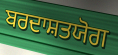
ਬਰਦਾਸ਼ਤਯੋਗ